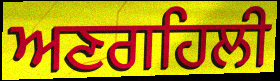
ਅਣਗਹਿਲੀ